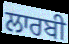
ਲਾਰਬੀ